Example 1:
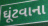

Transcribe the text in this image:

ઘૂંટવાના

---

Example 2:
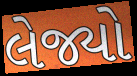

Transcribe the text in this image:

લેજ્યો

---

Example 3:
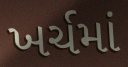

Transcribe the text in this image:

ખર્ચમાં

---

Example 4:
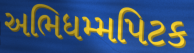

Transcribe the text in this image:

અભિધમ્મપિટક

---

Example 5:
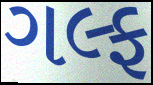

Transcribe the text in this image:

ગલ્ફ